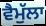
ਵੈਮੁੱਲਾ